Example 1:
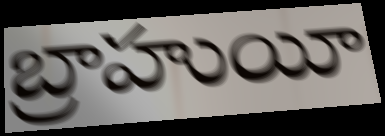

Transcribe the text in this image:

బ్రాహుయీ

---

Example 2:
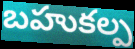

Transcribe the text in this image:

బహుకల్ప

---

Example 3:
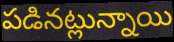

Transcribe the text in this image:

పడినట్లున్నాయి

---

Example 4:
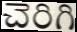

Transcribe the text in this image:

చెరిగి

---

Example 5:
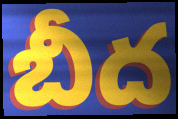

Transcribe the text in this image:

బీద